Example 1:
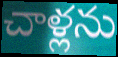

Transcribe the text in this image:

చాళ్లను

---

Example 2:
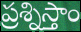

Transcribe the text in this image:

ప్రశ్నిస్తాం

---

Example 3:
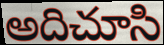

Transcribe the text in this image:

అదిచూసి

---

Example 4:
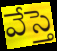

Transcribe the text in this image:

వేస్తె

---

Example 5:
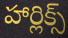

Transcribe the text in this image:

హార్లిక్స్